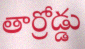
తార్రోడ్డు